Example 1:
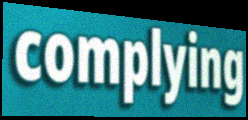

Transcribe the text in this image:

complying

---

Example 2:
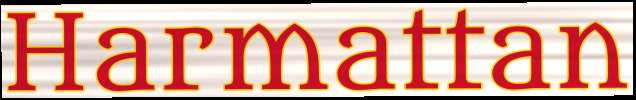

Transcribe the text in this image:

Harmattan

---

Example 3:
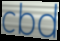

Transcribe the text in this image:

cbd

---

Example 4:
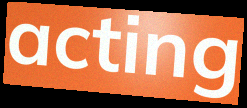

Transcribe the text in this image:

acting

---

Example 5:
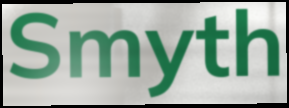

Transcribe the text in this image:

Smyth